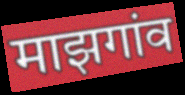
माझगांव